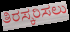
ತಿರಸ್ಕರಿಸಲು